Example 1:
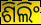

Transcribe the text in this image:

ଶିଲିଂ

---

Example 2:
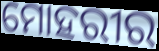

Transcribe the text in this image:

ମୋହରୀର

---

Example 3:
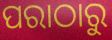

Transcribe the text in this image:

ପରାଠାରୁ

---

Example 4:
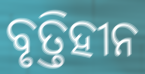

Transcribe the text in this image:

ବୃତ୍ତିହୀନ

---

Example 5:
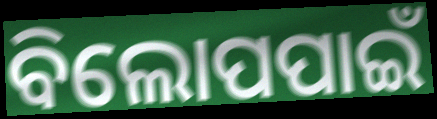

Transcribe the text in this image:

ବିଲୋପପାଇଁ